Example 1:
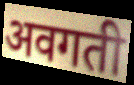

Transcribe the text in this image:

अवगती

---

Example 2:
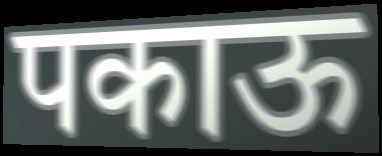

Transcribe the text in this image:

पकाऊ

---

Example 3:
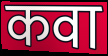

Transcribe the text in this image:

कवा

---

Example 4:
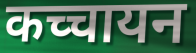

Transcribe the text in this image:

कच्चायन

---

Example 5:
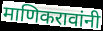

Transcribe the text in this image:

माणिकरावांनी